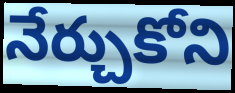
నేర్చుకోని